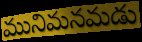
మునిమనమడు